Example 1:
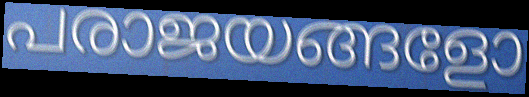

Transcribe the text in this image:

പരാജയങ്ങളോ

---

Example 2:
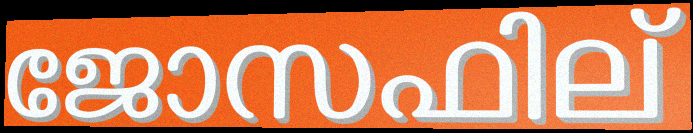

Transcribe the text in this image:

ജോസഫില്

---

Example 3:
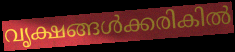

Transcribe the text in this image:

വൃക്ഷങ്ങൾക്കരികിൽ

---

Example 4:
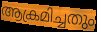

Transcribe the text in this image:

ആക്രമിച്ചതും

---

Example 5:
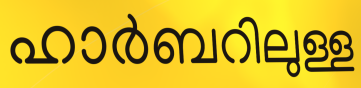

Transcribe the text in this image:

ഹാർബറിലുള്ള